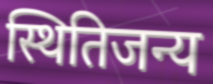
स्थितिजन्य